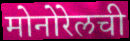
मोनोरेलची